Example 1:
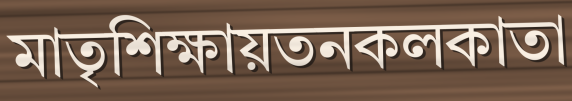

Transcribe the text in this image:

মাতৃশিক্ষায়তনকলকাতা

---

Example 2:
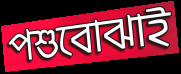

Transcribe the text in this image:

পশুবোঝাই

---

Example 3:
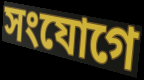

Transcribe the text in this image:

সংযোগে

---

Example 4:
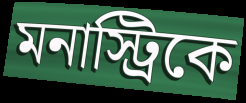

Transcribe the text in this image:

মনাস্ট্রিকে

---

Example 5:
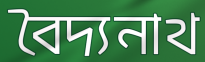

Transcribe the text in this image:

বৈদ্যনাথ